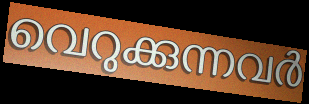
വെറുക്കുന്നവർ